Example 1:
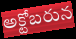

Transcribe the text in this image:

అక్టోబరున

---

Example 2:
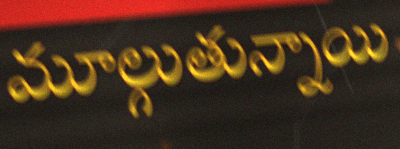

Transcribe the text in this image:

మూల్గుతున్నాయి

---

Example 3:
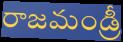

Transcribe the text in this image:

రాజమండ్రీ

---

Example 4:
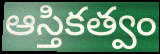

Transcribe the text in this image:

ఆస్తికత్వం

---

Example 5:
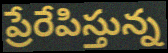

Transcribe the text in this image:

ప్రేరేపిస్తున్న